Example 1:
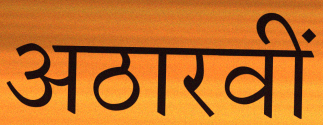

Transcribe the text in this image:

अठारवीं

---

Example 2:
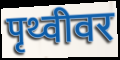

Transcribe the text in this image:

पृथ्वीवर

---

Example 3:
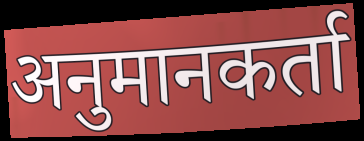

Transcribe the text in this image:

अनुमानकर्ता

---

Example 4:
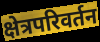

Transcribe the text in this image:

क्षेत्रपरिवर्तन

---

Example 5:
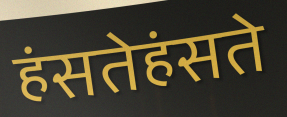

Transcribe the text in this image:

हंसतेहंसते